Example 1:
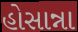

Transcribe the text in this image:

હોસાન્ના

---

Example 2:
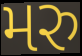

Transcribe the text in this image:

મરુ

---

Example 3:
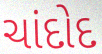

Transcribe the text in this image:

ચાંદોદ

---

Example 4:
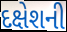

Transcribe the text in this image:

દક્ષેશની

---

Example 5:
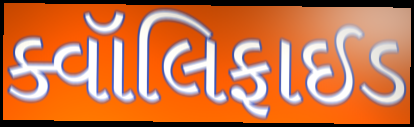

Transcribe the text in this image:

ક્વૉલિફાઈડ